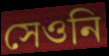
সেওনি